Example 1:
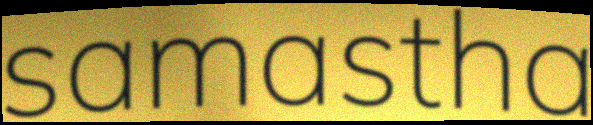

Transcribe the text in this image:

samastha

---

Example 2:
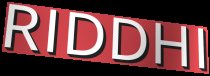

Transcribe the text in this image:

RIDDHI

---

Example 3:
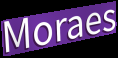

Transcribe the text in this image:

Moraes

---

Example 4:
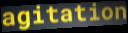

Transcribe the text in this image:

agitation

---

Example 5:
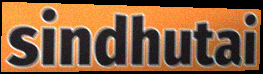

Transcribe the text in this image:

sindhutai